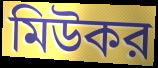
মিউকর